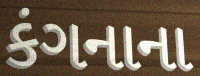
કંગનાના